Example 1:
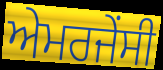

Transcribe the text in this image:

ਅੇਮਰਜੇਂਸੀ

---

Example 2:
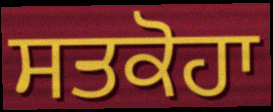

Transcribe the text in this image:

ਸਤਕੋਹਾ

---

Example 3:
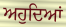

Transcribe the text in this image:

ਅਹੁਦਿਆਂ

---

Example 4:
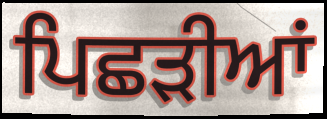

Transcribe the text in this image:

ਪਿਛੜੀਆਂ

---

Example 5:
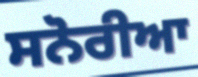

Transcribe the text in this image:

ਸਨੋਰੀਆ